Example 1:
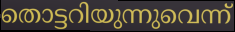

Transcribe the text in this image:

തൊട്ടറിയുന്നുവെന്ന്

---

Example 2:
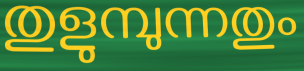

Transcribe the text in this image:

തുളുമ്പുന്നതും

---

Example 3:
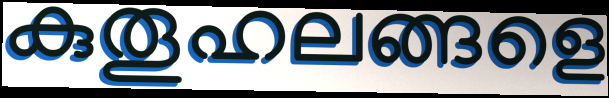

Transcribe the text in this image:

കുതൂഹലങ്ങളെ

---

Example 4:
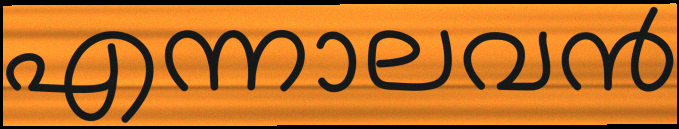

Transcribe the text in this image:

എന്നാലവൻ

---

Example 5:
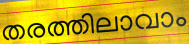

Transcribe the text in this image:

തരത്തിലാവാം